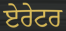
ਏਰੇਟਰ